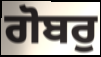
ਗੋਬਰੁ